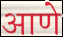
आणे